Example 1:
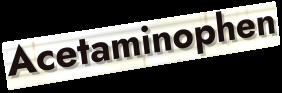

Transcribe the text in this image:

Acetaminophen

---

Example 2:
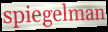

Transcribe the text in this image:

spiegelman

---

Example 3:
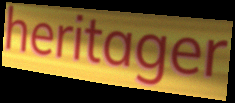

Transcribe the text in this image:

heritager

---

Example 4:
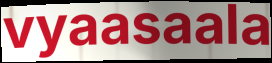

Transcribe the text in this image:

vyaasaala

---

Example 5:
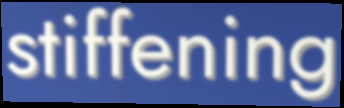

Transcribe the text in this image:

stiffening